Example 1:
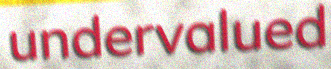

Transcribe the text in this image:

undervalued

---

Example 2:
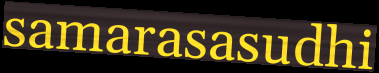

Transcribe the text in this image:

samarasasudhi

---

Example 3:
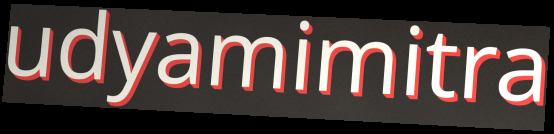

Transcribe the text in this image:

udyamimitra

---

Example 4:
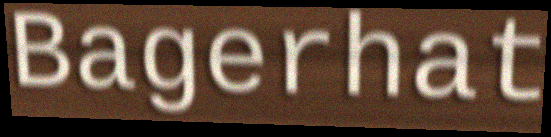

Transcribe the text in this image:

Bagerhat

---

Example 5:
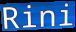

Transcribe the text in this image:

Rini